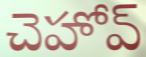
చెహోవ్